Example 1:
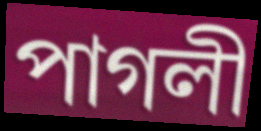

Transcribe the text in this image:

পাগলী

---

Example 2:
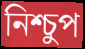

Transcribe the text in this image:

নিশ্চুপ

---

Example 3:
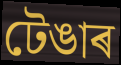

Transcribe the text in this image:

টেঙাৰ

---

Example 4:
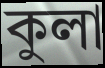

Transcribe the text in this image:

কুলা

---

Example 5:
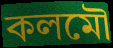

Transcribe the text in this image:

কলমৌ